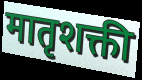
मातृशक्ती